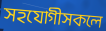
সহযোগীসকলে